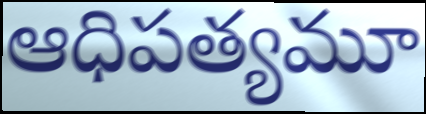
ఆధిపత్యమూ